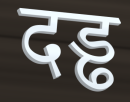
दड्ढ